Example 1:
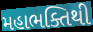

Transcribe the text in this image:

મહાભક્તિથી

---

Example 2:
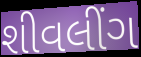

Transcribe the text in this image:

શીવલીંગ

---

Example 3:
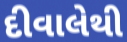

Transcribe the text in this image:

દીવાલેથી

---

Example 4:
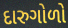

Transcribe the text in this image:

દારુગોળો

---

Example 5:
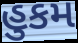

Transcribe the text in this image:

હુકમ